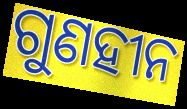
ଗୁଣହୀନ